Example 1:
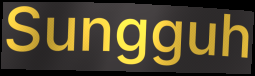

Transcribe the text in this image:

Sungguh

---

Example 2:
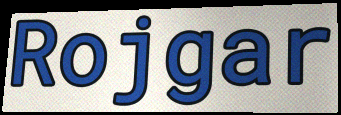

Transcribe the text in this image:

Rojgar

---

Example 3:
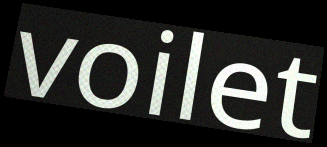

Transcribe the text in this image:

voilet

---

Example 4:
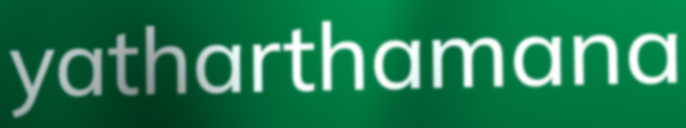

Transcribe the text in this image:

yatharthamana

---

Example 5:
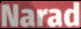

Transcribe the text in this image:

Narad